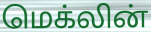
மெக்லின்